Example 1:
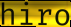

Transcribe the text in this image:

hiro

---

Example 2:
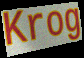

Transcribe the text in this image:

Krog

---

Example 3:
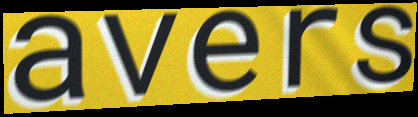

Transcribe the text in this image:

avers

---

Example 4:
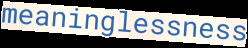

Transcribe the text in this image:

meaninglessness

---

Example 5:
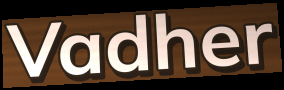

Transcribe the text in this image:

Vadher